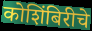
कोशिंबिरीचे